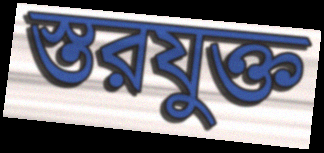
স্তরযুক্ত